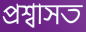
প্ৰশ্বাসত